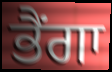
ਭੈਂਗਾ